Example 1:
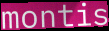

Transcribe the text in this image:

montis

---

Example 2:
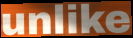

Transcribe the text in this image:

unlike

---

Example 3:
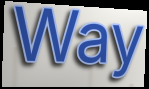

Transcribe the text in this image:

Way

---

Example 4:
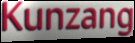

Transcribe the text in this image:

Kunzang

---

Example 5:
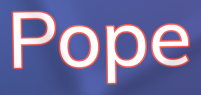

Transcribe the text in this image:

Pope